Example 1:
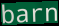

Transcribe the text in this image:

barn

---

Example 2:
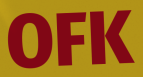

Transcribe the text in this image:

OFK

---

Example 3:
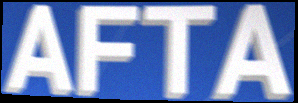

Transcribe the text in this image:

AFTA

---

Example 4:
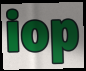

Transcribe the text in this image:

iop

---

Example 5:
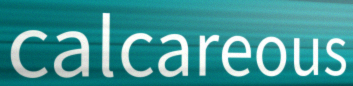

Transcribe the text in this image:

calcareous